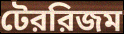
টেররিজম